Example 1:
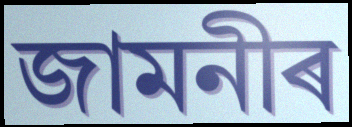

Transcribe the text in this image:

জামনীৰ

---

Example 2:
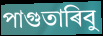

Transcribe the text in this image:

পাগুতাৰিবু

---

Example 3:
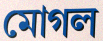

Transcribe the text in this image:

মোগল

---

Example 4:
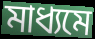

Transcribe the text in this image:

মাধ্যমে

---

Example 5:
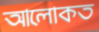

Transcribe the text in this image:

আলোকত